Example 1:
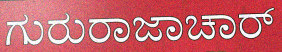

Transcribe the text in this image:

ಗುರುರಾಜಾಚಾರ್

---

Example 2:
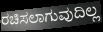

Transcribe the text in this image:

ರಚಿಸಲಾಗುವುದಿಲ್ಲ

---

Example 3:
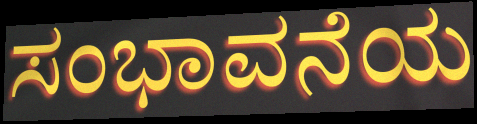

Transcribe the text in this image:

ಸಂಭಾವನೆಯ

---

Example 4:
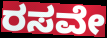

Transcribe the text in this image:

ರಸವೇ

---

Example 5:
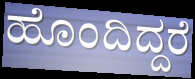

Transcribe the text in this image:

ಹೊಂದಿದ್ದರೆ